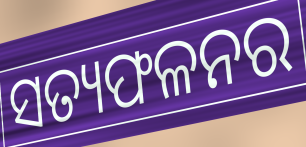
ସତ୍ୟଫଳନର